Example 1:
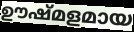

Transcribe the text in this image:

ഊഷ്മളമായ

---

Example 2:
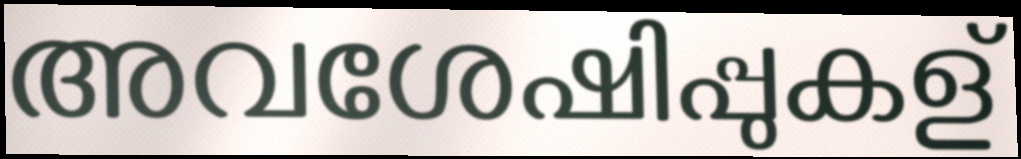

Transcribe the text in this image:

അവശേഷിപ്പുകള്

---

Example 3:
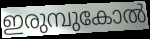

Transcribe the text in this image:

ഇരുമ്പുകോൽ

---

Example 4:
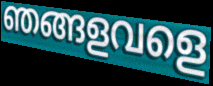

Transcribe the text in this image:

ഞങ്ങളവളെ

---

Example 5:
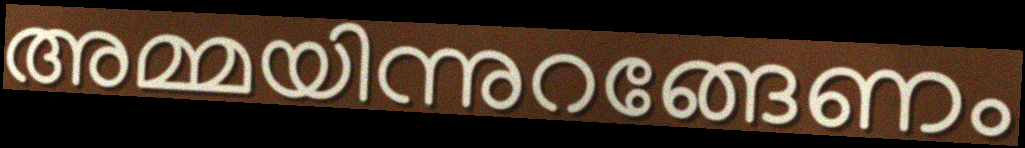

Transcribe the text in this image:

അമ്മയിന്നുറങ്ങേണം